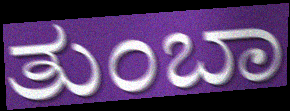
ತುಂಬಾ